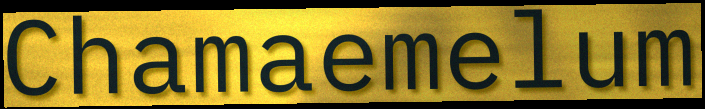
Chamaemelum